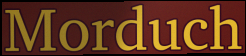
Morduch